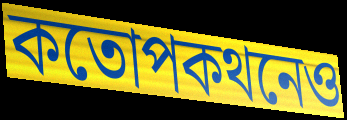
কতোপকথনেও